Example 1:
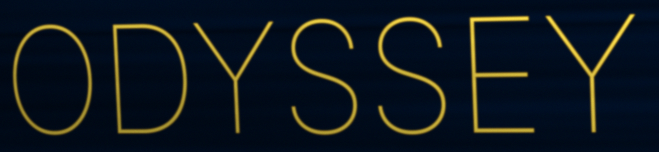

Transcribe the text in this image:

ODYSSEY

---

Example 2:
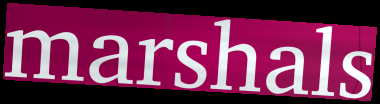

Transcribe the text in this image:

marshals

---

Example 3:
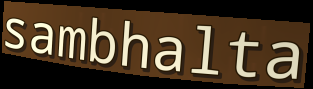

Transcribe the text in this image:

sambhalta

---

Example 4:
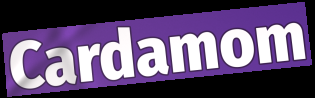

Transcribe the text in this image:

Cardamom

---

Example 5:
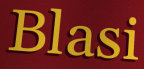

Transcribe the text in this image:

Blasi